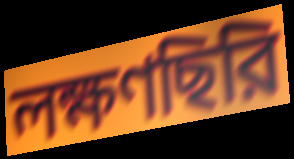
লক্ষণছিরি